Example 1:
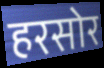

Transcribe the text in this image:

हरसोर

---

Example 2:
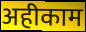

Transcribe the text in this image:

अहीकाम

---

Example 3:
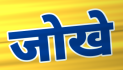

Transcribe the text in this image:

जोखे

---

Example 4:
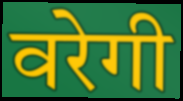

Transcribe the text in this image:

वरेगी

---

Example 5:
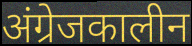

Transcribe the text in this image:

अंग्रेजकालीन